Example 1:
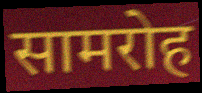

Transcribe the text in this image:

सामरोह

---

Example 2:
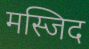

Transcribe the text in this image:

मस्जिद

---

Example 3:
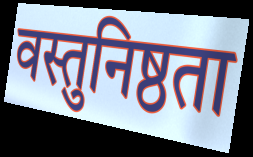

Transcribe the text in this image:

वस्तुनिष्ठता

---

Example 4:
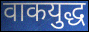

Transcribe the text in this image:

वाकयुद्ध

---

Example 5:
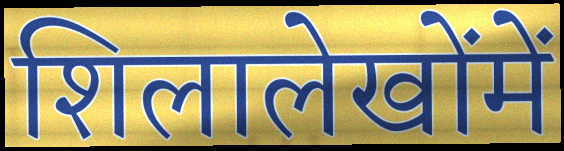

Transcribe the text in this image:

शिलालेखोंमें